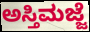
ಅಸ್ತಿಮಜ್ಜೆ